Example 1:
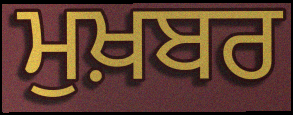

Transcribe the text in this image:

ਮੁਖ਼ਬਰ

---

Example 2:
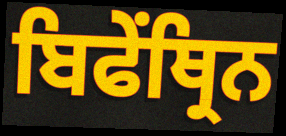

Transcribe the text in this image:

ਬਿਫੇਂਥ੍ਰਿਨ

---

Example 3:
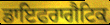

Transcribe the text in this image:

ਡਾਇਫਰਾਗੈਟਿਕ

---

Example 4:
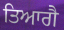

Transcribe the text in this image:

ਤਿਆਗੈ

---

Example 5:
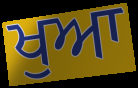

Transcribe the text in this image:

ਖੁਆ